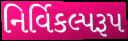
નિર્વિકલ્પરૂપ